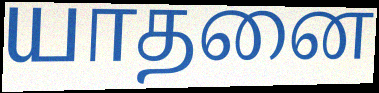
யாதனை